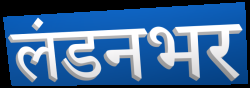
लंडनभर